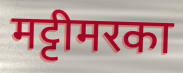
मट्टीमरका